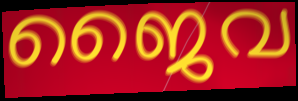
ജൈവ